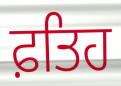
ਫ਼ਤਿਹ